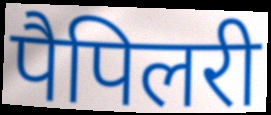
पैपिलरी